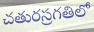
చతురస్రగతిలో